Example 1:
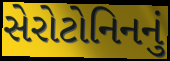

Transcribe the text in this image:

સેરોટોનિનનું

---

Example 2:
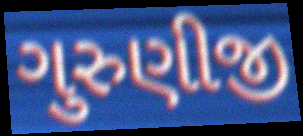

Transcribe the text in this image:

ગુરુણીજી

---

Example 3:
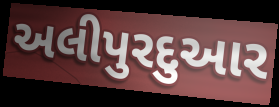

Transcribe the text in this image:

અલીપુરદુઆર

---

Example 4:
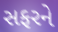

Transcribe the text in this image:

સફરને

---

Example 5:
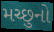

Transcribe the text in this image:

મચ્છુનો